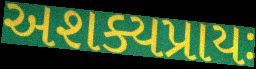
અશક્યપ્રાયઃ